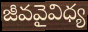
జీవవైవిధ్య